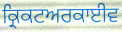
ਕ੍ਰਿਕਟਅਰਕਾਈਵ